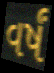
વર્ષં